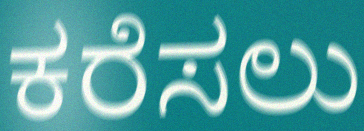
ಕರೆಸಲು